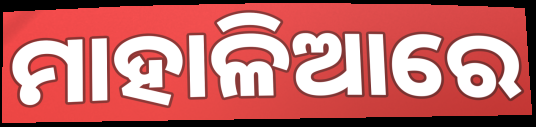
ମାହାଳିଆରେ